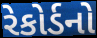
રેકોર્ડનો